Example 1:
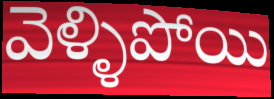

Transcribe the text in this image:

వెళ్ళిపోయి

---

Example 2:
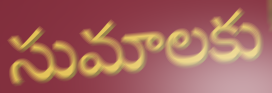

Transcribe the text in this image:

సుమాలకు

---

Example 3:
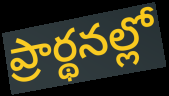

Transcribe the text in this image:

ప్రార్థనల్లో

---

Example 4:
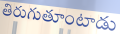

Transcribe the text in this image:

తిరుగుతూంటాడు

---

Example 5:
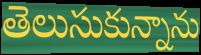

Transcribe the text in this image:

తెలుసుకున్నాను